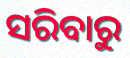
ସରିବାରୁ